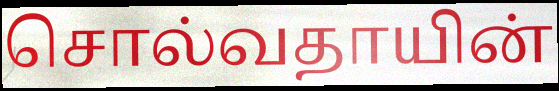
சொல்வதாயின்